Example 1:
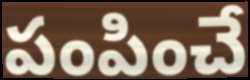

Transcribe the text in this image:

పంపించే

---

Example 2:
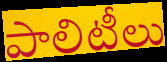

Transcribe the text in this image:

పాలిటీలు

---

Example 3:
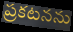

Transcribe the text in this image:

ప్రకటనను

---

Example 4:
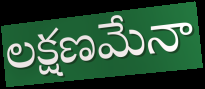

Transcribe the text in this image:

లక్షణమేనా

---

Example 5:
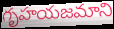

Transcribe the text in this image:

గృహయజమాని